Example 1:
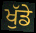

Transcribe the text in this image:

ਖੁੱਡੇ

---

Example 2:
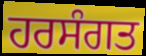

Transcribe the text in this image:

ਹਰਸੰਗਤ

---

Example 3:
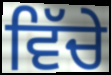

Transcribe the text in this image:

ਵਿੱਚੇ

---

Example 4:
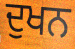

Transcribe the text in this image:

ਦੁਖਨ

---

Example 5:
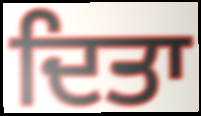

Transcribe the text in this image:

ਦਿਤਾ